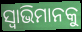
ସ୍ୱାଭିମାନକୁ